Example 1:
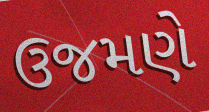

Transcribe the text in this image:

ઉજમણે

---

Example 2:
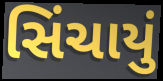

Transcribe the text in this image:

સિંચાયું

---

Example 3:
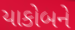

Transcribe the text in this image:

યાકોબને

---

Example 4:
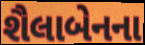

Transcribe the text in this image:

શૈલાબેનના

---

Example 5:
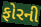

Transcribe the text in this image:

ફોરની